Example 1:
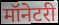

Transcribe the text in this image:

मॉनेटरी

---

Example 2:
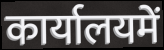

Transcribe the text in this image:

कार्यालयमें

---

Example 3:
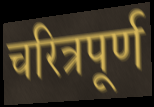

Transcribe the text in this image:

चरित्रपूर्ण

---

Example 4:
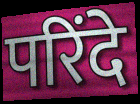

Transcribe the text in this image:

परिंदे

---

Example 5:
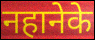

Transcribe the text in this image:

नहानेके